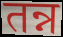
तन्न